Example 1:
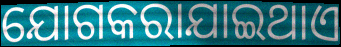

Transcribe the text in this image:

ଯୋଗକରାଯାଇଥାଏ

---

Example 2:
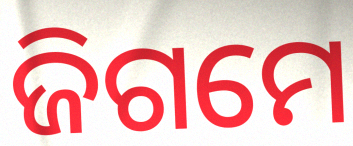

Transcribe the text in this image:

ଜିଗମେ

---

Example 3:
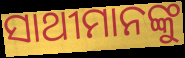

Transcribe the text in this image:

ସାଥୀମାନଙ୍କୁ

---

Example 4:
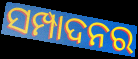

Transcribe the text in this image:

ସମ୍ପାଦନର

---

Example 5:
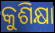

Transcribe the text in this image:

କୁଶିକ୍ଷା